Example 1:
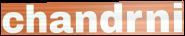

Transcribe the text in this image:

chandrni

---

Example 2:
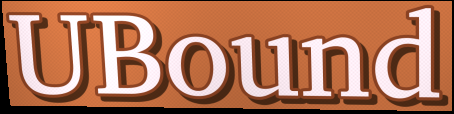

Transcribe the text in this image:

UBound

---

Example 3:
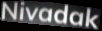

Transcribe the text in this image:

Nivadak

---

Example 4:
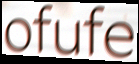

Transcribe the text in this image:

ofufe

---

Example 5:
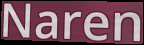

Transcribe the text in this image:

Naren